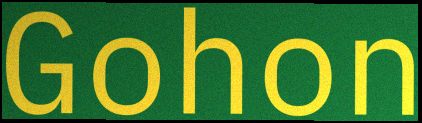
Gohon